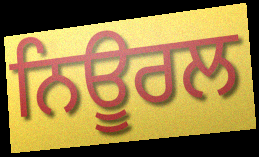
ਨਿਊਰਲ